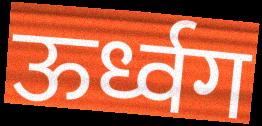
ऊर्ध्वग